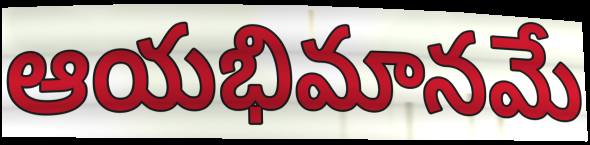
ఆయభిమానమే